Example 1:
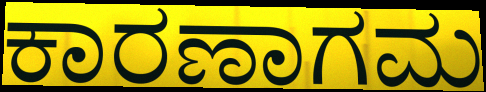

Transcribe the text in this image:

ಕಾರಣಾಗಮ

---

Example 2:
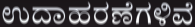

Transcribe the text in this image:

ಉದಾಹರಣೆಗಳಿವೆ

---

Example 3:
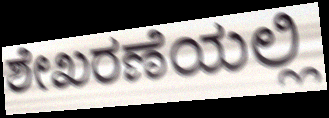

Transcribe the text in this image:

ಶೇಖರಣೆಯಲ್ಲಿ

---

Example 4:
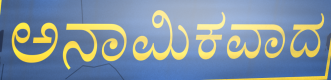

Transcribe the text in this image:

ಅನಾಮಿಕವಾದ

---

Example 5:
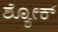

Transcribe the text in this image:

ಶ್ಯೋಕ್